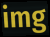
img